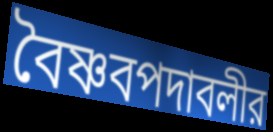
বৈষ্ণবপদাবলীর